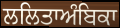
ਲਲਿਤਾਅੰਬਿਕਾ